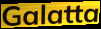
Galatta